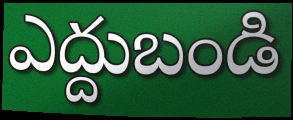
ఎద్దుబండి